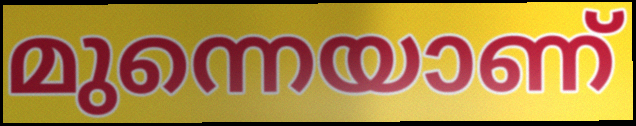
മുന്നെയാണ്